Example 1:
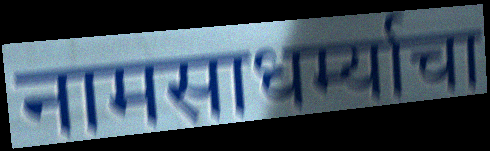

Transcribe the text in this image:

नामसाधर्म्याचा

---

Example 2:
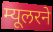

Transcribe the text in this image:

म्यूलरने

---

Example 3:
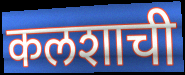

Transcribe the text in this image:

कलशाची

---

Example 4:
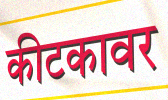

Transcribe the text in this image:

कीटकावर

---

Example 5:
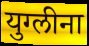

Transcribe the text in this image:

युग्लीना